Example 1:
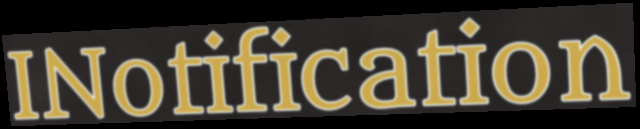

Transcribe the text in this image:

INotification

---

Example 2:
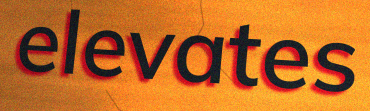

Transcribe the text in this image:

elevates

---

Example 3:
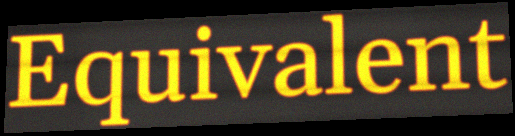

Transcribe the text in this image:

Equivalent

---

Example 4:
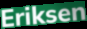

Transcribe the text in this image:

Eriksen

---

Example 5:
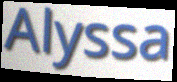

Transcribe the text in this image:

Alyssa